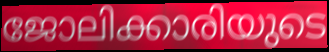
ജോലിക്കാരിയുടെ